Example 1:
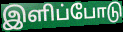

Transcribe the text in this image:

இளிப்போடு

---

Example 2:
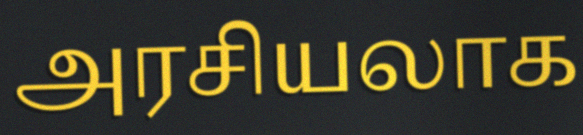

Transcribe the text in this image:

அரசியலாக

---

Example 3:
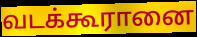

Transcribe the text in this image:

வடக்கூரானை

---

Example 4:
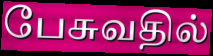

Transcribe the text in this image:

பேசுவதில்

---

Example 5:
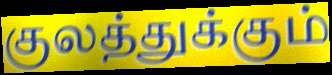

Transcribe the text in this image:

குலத்துக்கும்